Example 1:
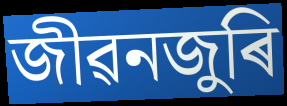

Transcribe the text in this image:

জীৱনজুৰি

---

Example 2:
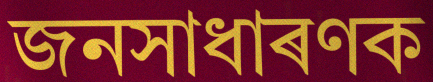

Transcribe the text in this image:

জনসাধাৰণক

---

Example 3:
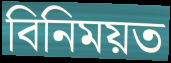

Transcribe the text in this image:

বিনিময়ত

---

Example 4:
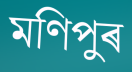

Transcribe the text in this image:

মণিপুৰ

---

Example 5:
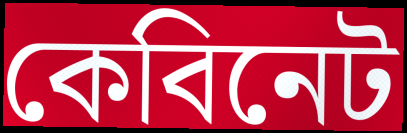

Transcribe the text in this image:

কেবিনেট